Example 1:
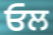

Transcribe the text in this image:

ਓਲ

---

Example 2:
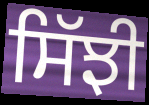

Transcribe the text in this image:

ਸਿੱਝੀ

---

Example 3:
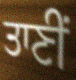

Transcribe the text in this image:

ਤਾਣੀਂ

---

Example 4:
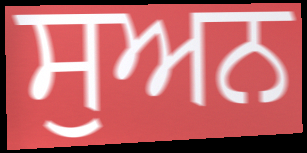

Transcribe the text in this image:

ਸੁਅਨ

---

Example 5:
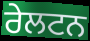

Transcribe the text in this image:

ਰੇਲਟਨ